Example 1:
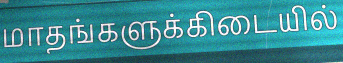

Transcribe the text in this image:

மாதங்களுக்கிடையில்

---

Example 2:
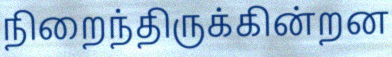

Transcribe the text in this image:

நிறைந்திருக்கின்றன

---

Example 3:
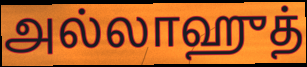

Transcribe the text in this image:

அல்லாஹுத்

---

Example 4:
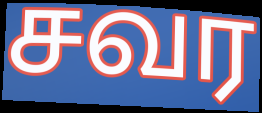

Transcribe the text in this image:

சவர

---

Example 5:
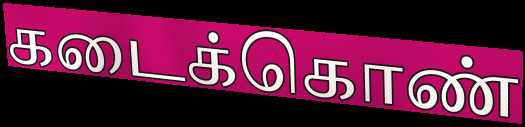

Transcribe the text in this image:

கடைக்கொண்